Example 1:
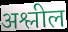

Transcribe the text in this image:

अश्लील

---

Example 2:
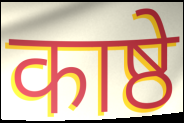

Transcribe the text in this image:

काष्ठे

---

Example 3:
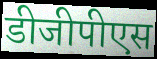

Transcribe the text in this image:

डीजीपीएस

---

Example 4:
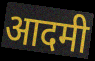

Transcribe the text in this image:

आदमी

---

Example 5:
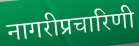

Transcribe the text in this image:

नागरीप्रचारिणी